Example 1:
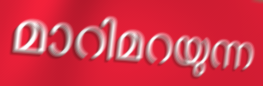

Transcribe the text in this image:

മാറിമറയുന്ന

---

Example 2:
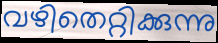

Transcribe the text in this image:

വഴിതെറ്റിക്കുന്നു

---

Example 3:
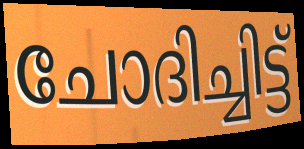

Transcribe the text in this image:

ചോദിച്ചിട്ട്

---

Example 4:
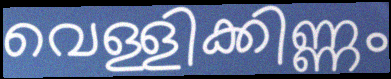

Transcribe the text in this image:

വെള്ളിക്കിണ്ണം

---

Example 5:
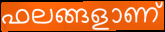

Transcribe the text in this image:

ഫലങ്ങളാണ്